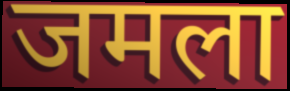
जमला